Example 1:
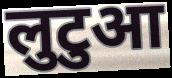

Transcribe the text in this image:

लुटुआ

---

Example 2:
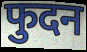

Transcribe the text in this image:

फुदन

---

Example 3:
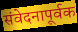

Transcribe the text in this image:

संवेदनापूर्वक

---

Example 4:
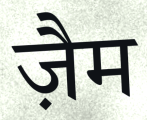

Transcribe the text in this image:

ज़ैम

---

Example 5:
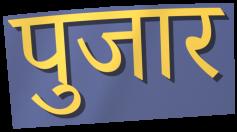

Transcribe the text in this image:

पुजार